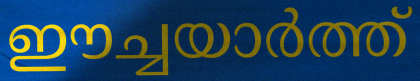
ഈച്ചയാർത്ത്